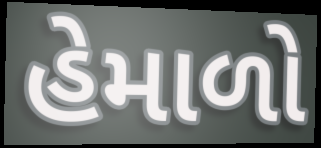
હેમાળો